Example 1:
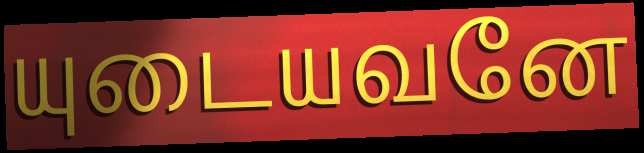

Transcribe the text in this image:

யுடையவனே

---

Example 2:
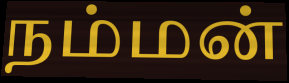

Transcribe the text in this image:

நம்மன்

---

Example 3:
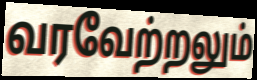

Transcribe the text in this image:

வரவேற்றலும்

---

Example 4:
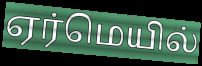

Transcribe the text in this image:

ஏர்மெயில்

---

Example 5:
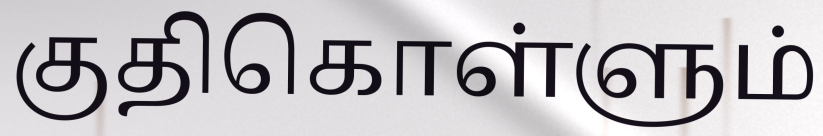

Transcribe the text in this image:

குதிகொள்ளும்